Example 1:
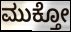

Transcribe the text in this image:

ಮುಕ್ತೋ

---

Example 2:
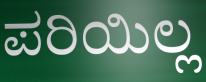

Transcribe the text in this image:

ಪರಿಯಿಲ್ಲ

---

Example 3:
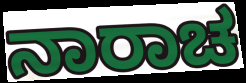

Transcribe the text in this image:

ನಾರಾಚ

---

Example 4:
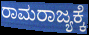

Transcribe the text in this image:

ರಾಮರಾಜ್ಯಕ್ಕೆ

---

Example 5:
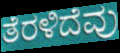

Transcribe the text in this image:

ತೆರಳಿದೆವು